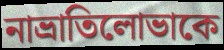
নাভ্রাতিলোভাকে